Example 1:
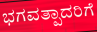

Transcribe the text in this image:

ಭಗವತ್ಪಾದರಿಗೆ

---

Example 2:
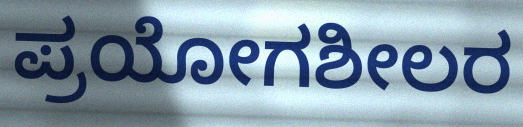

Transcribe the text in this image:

ಪ್ರಯೋಗಶೀಲರ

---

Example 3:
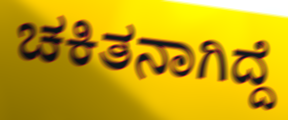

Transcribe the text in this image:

ಚಕಿತನಾಗಿದ್ದೆ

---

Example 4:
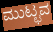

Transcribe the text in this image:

ಮುಟ್ಟವ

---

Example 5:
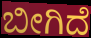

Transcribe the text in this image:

ಬೀಗಿದೆ